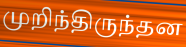
முறிந்திருந்தன